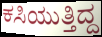
ಕಸಿಯುತ್ತಿದ್ದ